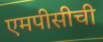
एमपीसीची